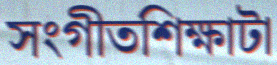
সংগীতশিক্ষাটা